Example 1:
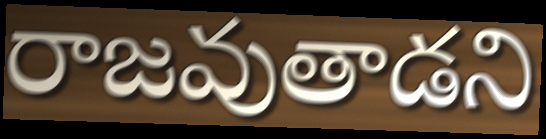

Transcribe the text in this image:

రాజవుతాడని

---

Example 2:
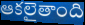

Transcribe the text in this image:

ఆకలైతాంది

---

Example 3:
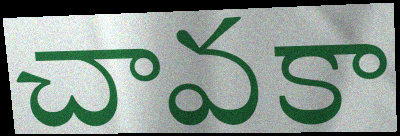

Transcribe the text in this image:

చావకా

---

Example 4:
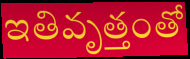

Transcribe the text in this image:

ఇతివృత్తంతో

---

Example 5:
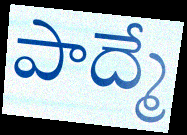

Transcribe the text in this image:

పాద్మే